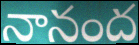
నానంద